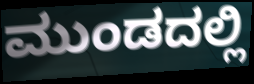
ಮುಂಡದಲ್ಲಿ